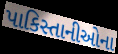
પાકિસ્તાનીઓના